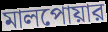
মালপোয়ার